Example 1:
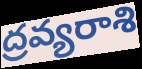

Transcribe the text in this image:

ద్రవ్యరాశి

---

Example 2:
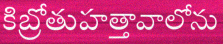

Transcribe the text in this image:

కిబ్రోతుహత్తావాలోను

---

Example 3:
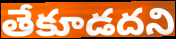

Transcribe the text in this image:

తేకూడదని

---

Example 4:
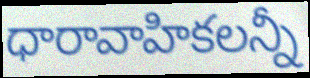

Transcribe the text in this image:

ధారావాహికలన్నీ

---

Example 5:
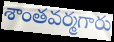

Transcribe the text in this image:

శాంతవర్మగారు